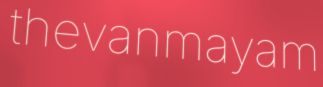
thevanmayam